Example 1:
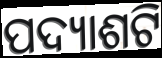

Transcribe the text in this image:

ପଦ୍ୟାଶଟି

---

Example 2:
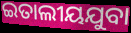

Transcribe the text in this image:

ଇତାଲୀୟଯୁବା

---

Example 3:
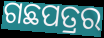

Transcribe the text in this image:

ଗଛପତ୍ରର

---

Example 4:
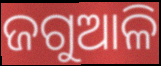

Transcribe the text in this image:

ଜଗୁଆଳି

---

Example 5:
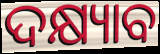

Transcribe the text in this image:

ଦକ୍ଷ୍ୟାବ